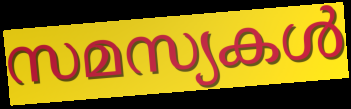
സമസ്യകൾ